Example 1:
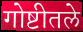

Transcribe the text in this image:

गोष्टीतले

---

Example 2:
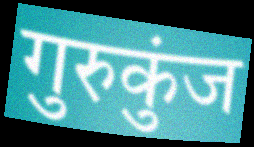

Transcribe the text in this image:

गुरुकुंज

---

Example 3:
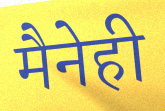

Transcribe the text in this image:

मैनेही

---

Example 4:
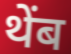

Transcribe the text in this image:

थेंब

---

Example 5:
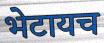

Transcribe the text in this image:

भेटायच